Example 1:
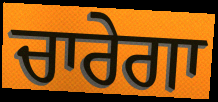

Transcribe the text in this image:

ਚਾਰੇਗਾ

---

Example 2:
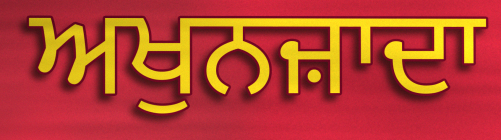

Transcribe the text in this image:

ਅਖੁਨਜ਼ਾਦਾ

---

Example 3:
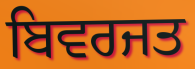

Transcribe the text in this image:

ਬਿਵਰਜਤ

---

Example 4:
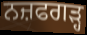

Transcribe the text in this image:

ਨਜ਼ਫਗੜ੍ਹ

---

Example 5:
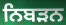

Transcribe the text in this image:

ਨਿਬੜਨ